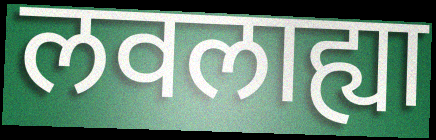
लवलाह्या